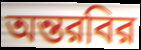
অন্তরবির